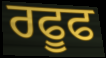
ਰਫੂਫ